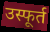
उस्फूर्त